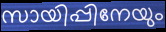
സായിപ്പിനേയും